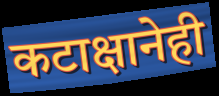
कटाक्षानेही